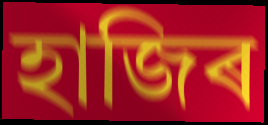
হাজিৰ